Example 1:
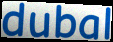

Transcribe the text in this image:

dubal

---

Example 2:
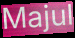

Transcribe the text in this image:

Majul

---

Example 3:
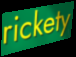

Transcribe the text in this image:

rickety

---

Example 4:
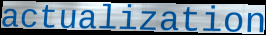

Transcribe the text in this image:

actualization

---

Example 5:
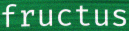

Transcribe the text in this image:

fructus